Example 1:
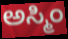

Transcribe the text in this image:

ಅಸ್ಮಿಂ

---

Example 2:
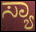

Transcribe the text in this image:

ಸ್ಯಾ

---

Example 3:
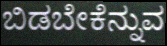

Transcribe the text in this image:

ಬಿಡಬೇಕೆನ್ನುವ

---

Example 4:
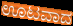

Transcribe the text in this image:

ಊಟವಾದ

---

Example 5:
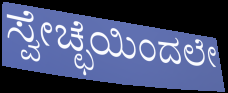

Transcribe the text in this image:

ಸ್ವೇಚ್ಛೆಯಿಂದಲೇ